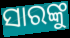
ସାରଙ୍କୁ